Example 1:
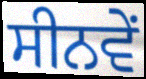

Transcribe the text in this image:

ਸੀਨਵੇਂ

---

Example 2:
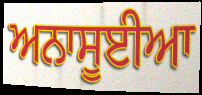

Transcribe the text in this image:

ਅਨਾਸੂਈਆ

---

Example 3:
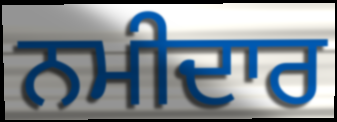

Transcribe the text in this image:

ਨਮੀਦਾਰ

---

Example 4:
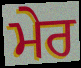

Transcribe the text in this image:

ਮੇਰ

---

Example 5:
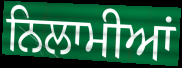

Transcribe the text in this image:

ਨਿਲਾਮੀਆਂ